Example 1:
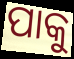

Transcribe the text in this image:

ପାକୁ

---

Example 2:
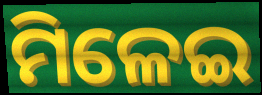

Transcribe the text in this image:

ମିଳେଇ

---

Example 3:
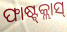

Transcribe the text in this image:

ଫାଷ୍ଟ୍‍କ୍ଲାସ୍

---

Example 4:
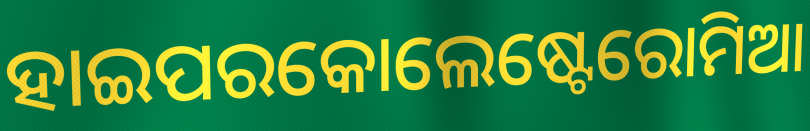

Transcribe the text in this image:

ହାଇପରକୋଲେଷ୍ଟେରୋମିଆ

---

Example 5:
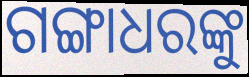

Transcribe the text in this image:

ଗଙ୍ଗାଧରଙ୍କୁ